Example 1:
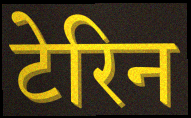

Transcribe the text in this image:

टेरिन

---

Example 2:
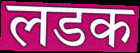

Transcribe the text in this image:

लडक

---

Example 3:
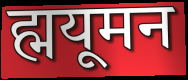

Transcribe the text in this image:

ह्मयूमन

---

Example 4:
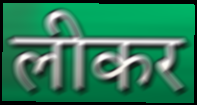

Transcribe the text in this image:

लीकर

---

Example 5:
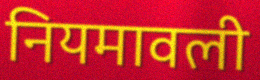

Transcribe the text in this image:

नियमावली